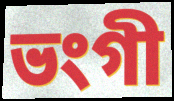
ভংগী